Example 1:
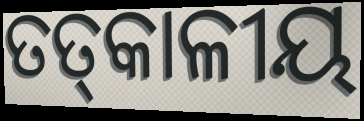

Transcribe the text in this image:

ତତ୍‌କାଳୀୟ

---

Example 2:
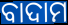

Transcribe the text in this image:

ବାଦାମ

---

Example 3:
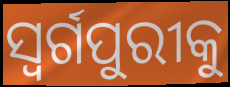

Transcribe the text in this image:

ସ୍ୱର୍ଗପୁରୀକୁ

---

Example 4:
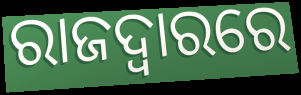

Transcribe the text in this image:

ରାଜଦ୍ୱାରରେ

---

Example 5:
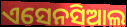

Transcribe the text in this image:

ଏସେନସିଆଲ